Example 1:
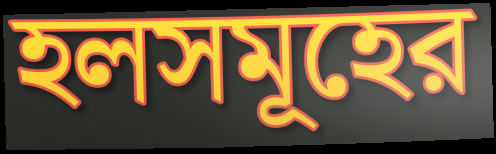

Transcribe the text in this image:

হলসমূহের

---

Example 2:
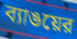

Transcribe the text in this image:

ব্যাঙয়ের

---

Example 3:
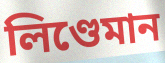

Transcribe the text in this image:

লিণ্ডেমান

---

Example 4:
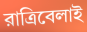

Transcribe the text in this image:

রাত্রিবেলাই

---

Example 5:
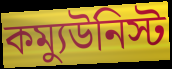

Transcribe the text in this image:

কম্যুউনিস্ট